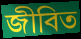
জীবিত